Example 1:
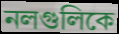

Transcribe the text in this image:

নলগুলিকে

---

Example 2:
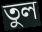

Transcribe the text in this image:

তুল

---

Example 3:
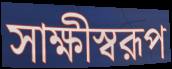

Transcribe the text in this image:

সাক্ষীস্বরূপ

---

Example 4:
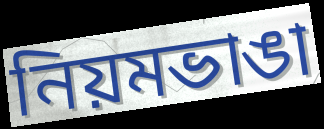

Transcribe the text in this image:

নিয়মভাঙা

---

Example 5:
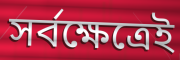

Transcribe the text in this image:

সর্বক্ষেত্রেই